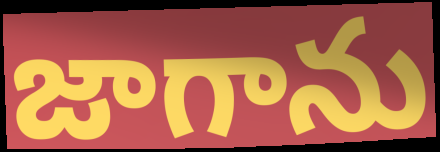
జాగాను